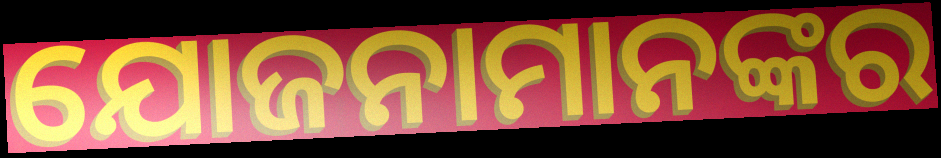
ଯୋଜନାମାନଙ୍କର